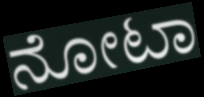
ನೋಟಾ